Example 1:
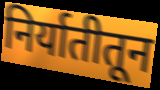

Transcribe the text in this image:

निर्यातीतून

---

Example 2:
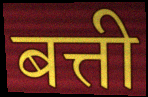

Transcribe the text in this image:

बत्ती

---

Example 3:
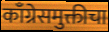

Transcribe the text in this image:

काँग्रेसमुक्तीचा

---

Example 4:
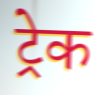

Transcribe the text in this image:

ट्रेक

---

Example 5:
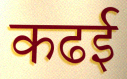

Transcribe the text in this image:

कढई